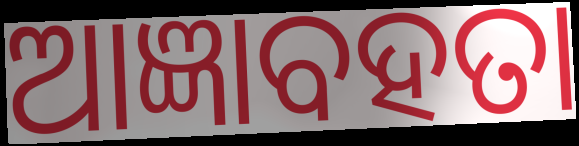
ଆଜ୍ଞାବହତା